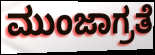
ಮುಂಜಾಗ್ರತೆ